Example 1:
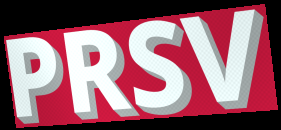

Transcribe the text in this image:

PRSV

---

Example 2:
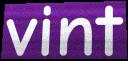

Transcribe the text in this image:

vint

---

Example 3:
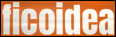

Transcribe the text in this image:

ficoidea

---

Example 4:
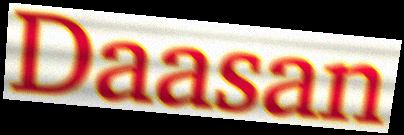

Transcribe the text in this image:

Daasan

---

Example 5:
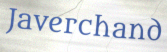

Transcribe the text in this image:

Javerchand